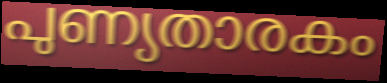
പുണ്യതാരകം